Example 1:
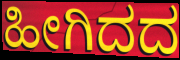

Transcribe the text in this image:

ಹೀಗಿದದ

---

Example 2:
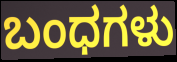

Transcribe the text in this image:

ಬಂಧಗಳು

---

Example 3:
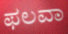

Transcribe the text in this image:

ಫಲವಾ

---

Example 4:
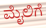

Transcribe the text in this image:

ಮೈಲಿಗೆ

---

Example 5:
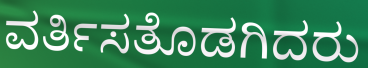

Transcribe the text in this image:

ವರ್ತಿಸತೊಡಗಿದರು